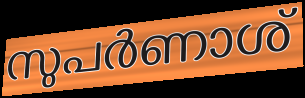
സുപർണാശ്